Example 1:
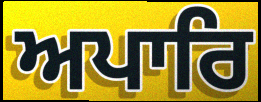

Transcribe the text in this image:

ਅਪਾਰਿ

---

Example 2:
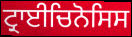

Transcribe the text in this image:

ਟ੍ਰਾਈਚਿਨੋਸਿਸ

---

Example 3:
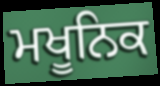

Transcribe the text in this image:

ਮਖੂਨਿਕ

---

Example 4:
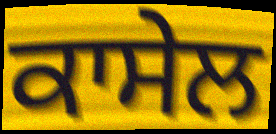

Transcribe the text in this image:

ਕਾਸੇਲ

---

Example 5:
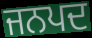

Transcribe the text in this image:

ਜਨਪਦ